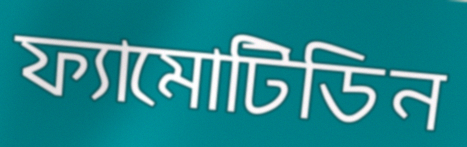
ফ্যামোটিডিন